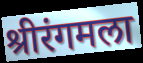
श्रीरंगमला